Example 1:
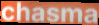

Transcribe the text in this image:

chasma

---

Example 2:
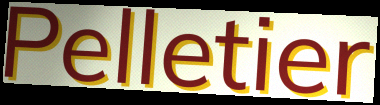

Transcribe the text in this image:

Pelletier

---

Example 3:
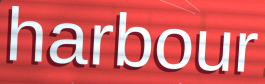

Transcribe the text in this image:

harbour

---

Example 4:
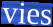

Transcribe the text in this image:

vies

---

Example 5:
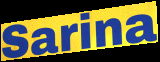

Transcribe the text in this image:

Sarina